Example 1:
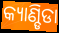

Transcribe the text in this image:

କ୍ୟାଣ୍ଡିଡା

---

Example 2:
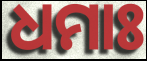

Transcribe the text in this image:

ଧମାଃ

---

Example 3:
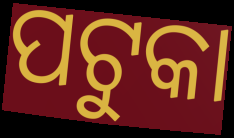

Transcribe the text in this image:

ପଟୁକା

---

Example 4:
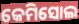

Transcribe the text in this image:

କେମିସୋଲ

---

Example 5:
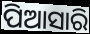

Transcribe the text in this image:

ପିଆସାରି